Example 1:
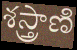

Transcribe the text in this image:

శస్త్రాణి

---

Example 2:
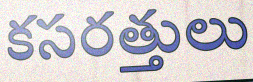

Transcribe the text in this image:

కసరత్తులు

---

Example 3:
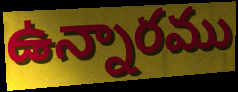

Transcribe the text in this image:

ఉన్నారము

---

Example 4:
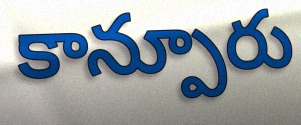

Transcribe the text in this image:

కాన్పూరు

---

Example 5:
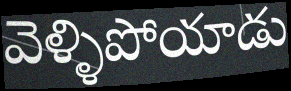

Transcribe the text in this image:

వెళ్ళిపోయాడు